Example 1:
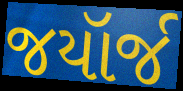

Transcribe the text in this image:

જયૉર્જ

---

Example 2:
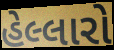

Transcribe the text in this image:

હેલ્લારો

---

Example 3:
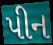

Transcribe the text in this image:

પીન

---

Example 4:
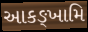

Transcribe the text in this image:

આકઙ્ખામિ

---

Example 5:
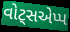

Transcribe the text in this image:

વોટ્સએપ્પ